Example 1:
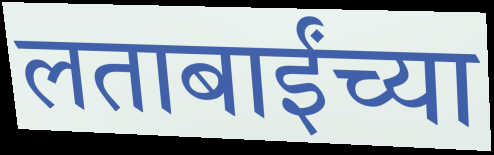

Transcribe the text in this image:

लताबाईंच्या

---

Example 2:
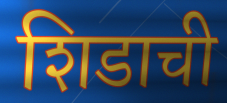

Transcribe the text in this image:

शिडाची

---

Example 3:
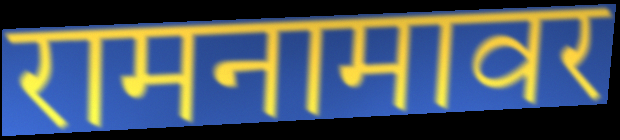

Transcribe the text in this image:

रामनामावर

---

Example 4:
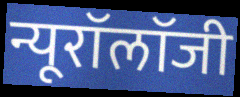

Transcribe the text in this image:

न्यूरॉलॉजी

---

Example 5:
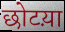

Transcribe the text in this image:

छोटय़ा